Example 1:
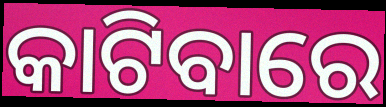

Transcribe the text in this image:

କାଟିବାରେ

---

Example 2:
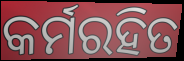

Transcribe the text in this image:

କର୍ମରହିତ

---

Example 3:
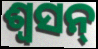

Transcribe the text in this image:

ଶ୍ୱସନ୍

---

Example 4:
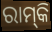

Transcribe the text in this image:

ରାମ୍‌କି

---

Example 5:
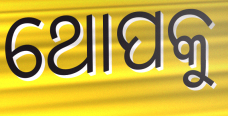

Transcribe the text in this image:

ଥୋପକୁ